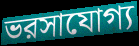
ভরসাযোগ্য